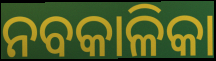
ନବକାଳିକା